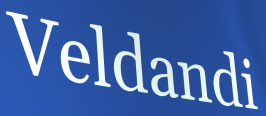
Veldandi